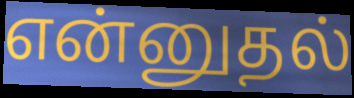
என்னுதல்